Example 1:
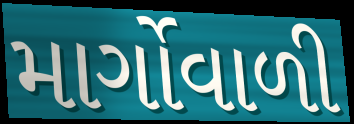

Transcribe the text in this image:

માર્ગોવાળી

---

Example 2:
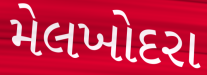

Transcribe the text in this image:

મેલખોદરા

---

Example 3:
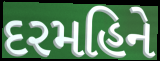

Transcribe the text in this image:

દરમહિને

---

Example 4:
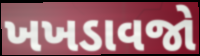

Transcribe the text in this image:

ખખડાવજો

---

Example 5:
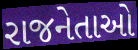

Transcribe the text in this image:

રાજનેતાઓ